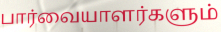
பார்வையாளர்களும்